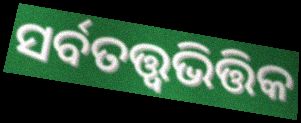
ସର୍ବତତ୍ତ୍ୱଭିତ୍ତିକ